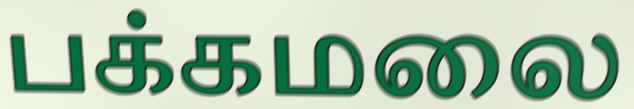
பக்கமலை